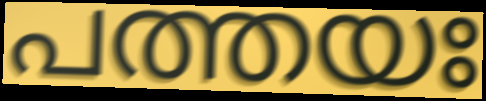
പത്തയഃ